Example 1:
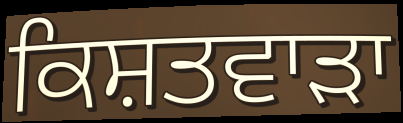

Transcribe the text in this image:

ਕਿਸ਼ਤਵਾੜਾ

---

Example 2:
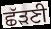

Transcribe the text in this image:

ਛੱੜਣੀ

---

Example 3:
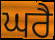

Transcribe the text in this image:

ਘਰੈ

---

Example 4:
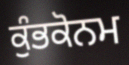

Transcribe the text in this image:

ਕੁੰਭਕੋਨਮ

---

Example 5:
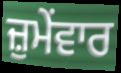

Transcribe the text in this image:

ਜ਼ੁਮੇਂਵਾਰ